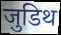
जुडिथ